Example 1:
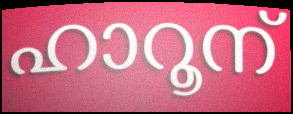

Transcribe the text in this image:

ഹാറൂന്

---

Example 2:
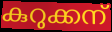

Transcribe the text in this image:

കുറുക്കന്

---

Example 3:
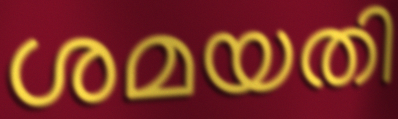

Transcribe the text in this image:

ശമയതി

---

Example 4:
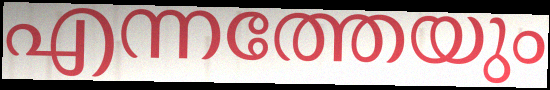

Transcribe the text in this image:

എന്നത്തേയും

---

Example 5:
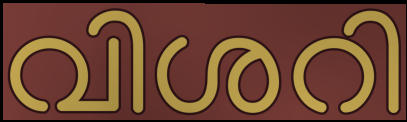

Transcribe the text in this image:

വിശറി